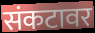
संकटावर